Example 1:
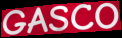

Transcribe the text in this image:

GASCO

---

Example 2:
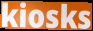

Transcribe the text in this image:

kiosks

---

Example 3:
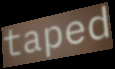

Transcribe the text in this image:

taped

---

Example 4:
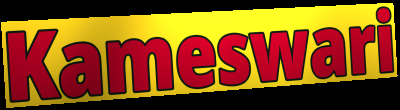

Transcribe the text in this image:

Kameswari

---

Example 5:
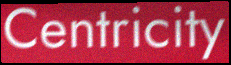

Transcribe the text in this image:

Centricity